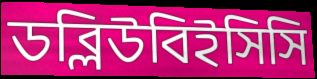
ডব্লিউবিইসিসি